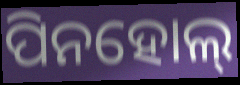
ପିନହୋଲ୍